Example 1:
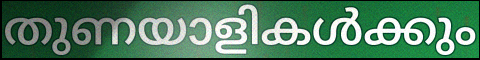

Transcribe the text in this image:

തുണയാളികൾക്കും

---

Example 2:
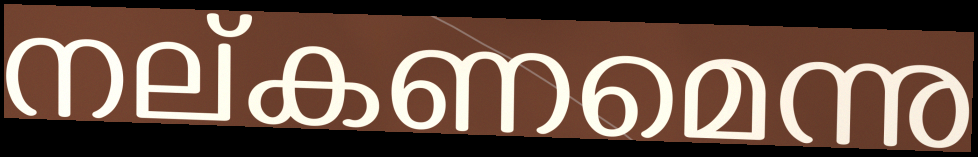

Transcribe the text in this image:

നല്‌കണമെന്നു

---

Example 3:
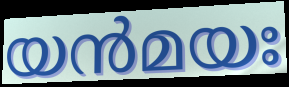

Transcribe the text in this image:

യൻമയഃ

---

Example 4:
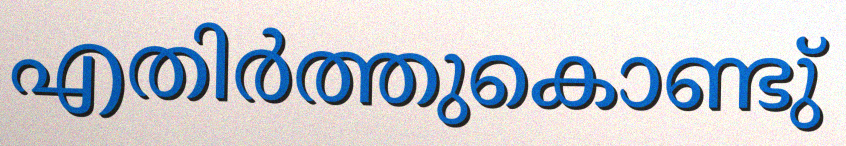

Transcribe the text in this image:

എതിർത്തുകൊണ്ടു്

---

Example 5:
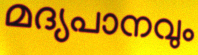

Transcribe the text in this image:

മദ്യപാനവും